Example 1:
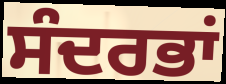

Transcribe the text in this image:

ਸੰਦਰਭਾਂ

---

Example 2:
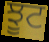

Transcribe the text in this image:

ਝੂਟ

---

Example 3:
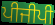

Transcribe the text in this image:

ਪੀਜੀਪੀ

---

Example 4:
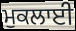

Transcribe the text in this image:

ਮੁਕਲਾਈ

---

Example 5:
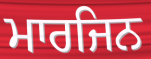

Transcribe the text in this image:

ਮਾਰਜਿਨ